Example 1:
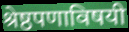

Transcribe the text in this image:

श्रेष्ठपणाविषयी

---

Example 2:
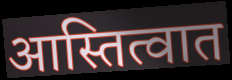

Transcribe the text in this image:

आस्तित्वात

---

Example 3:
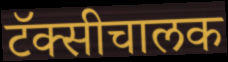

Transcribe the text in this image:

टॅक्सीचालक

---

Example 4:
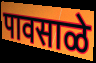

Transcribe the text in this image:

पावसाळे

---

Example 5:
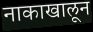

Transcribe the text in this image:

नाकाखालून